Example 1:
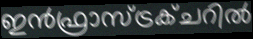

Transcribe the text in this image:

ഇൻഫ്രാസ്ട്രക്ചറിൽ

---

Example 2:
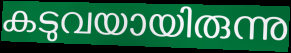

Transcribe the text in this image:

കടുവയായിരുന്നു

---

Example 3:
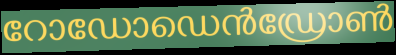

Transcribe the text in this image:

റോഡോഡെൻഡ്രോൺ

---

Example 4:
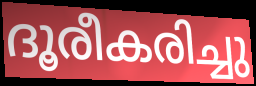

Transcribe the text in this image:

ദൂരീകരിച്ചു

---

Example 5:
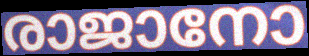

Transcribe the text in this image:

രാജാനോ